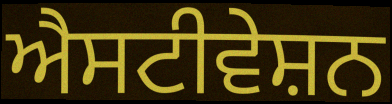
ਐਸਟੀਵੇਸ਼ਨ